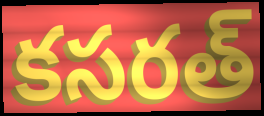
కసరత్